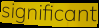
significant